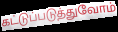
கட்டுப்படுத்துவோம்